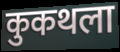
कुकथला